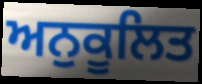
ਅਨੁਕੂਲਿਤ